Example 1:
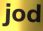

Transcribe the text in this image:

jod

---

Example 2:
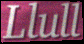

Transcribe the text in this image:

Llull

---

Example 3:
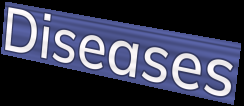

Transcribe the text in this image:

Diseases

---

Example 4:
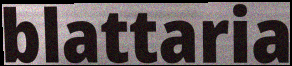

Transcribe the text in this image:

blattaria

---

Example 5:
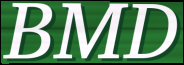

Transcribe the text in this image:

BMD